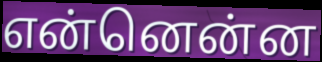
என்னென்ன